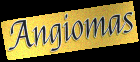
Angiomas